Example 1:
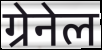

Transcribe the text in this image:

ग्रेनेल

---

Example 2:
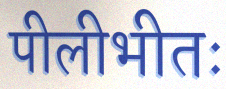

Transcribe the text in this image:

पीलीभीतः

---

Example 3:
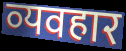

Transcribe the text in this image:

व्‍यवहार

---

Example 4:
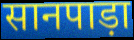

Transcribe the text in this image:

सानपाड़ा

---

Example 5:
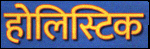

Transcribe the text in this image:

होलिस्टिक